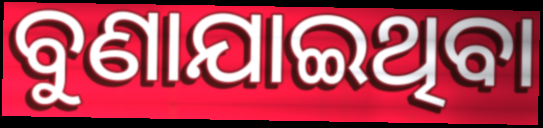
ବୁଣାଯାଇଥିବା